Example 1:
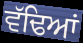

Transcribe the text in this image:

ਵੱਢਿਆਂ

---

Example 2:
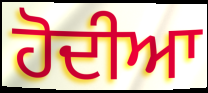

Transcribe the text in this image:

ਹੋਦੀਆ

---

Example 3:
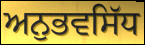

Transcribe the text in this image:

ਅਨੁਭਵਸਿੱਧ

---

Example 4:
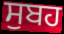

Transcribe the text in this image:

ਸੁਬਹ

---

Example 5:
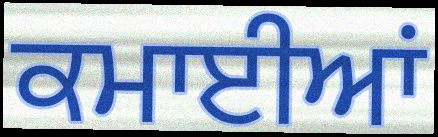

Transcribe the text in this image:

ਕਮਾਈਆਂ